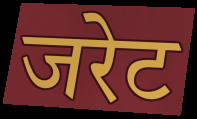
जरेट